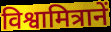
विश्वामित्रानें